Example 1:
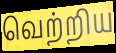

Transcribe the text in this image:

வெற்றிய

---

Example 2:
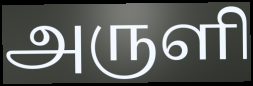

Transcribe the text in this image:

அருளி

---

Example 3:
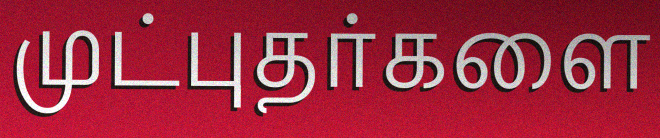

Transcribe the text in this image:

முட்புதர்களை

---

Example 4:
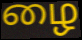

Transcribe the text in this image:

ழை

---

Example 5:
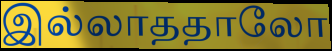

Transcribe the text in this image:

இல்லாததாலோ